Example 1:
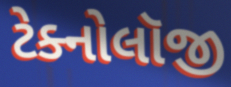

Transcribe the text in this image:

ટેક્નોલૉજી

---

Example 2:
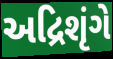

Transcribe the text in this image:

અદ્રિશૃંગે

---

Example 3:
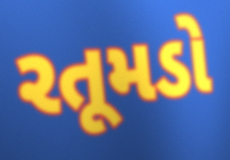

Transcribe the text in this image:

રતૂમડો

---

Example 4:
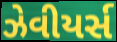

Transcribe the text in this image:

ઝેવીયર્સ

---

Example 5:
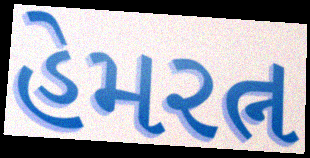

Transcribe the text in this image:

હેમરત્ન